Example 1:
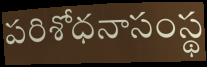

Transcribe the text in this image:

పరిశోధనాసంస్థ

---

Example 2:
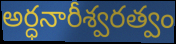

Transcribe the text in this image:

అర్ధనారీశ్వరత్వం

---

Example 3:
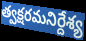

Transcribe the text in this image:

త్వక్షరమనిర్దేశ్య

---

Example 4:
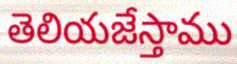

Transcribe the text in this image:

తెలియజేస్తాము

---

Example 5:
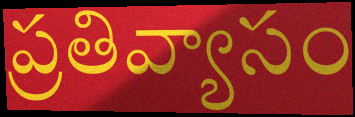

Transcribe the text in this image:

ప్రతివ్యాసం